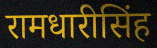
रामधारीसिंह